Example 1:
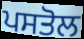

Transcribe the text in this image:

ਪਸਤੋਲ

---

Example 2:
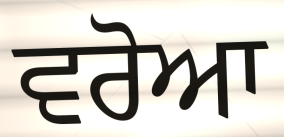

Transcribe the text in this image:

ਵਰੋਆ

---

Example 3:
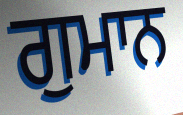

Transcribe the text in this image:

ਗੁਮਾਨ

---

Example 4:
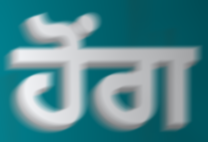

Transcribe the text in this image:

ਹੋਂਗ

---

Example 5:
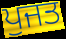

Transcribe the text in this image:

ਪੁਜਤ